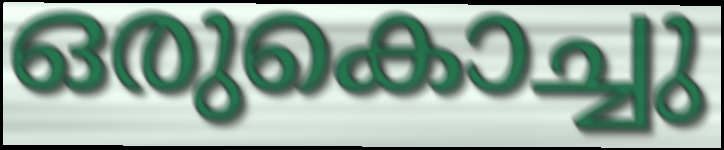
ഒരുകൊച്ചു